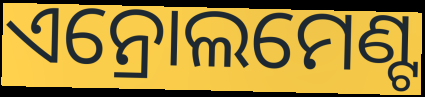
ଏନ୍ରୋଲମେଣ୍ଟ